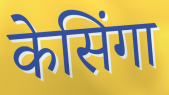
केसिंगा